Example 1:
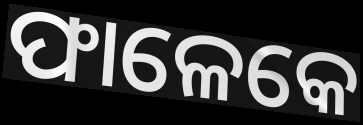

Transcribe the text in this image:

ଫାଳେକେ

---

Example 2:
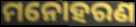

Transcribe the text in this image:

ମନୋହରଣ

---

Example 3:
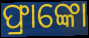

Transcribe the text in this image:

ଫ୍ରାଙ୍କୋ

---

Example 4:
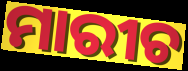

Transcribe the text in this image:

ମାରୀଚ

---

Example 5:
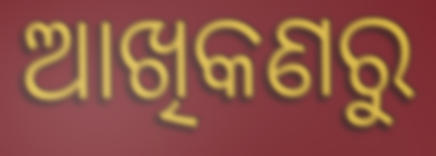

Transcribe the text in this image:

ଆଖିକଣରୁ